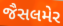
જૈસલમેર